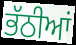
ਭੱਠੀਆਂ